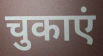
चुकाएं